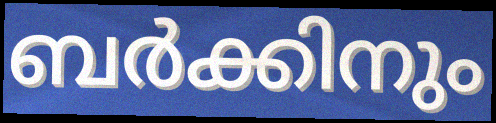
ബർക്കിനും